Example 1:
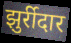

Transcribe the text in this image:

झुर्रीदार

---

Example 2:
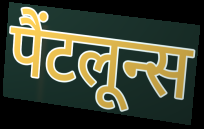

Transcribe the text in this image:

पैंटलून्स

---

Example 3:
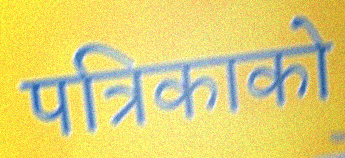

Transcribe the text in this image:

पत्रिकाको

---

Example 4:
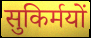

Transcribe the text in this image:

सुकिर्मयों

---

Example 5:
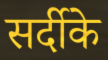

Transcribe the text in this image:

सर्दीके